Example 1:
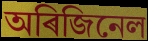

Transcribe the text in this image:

অৰিজিনেল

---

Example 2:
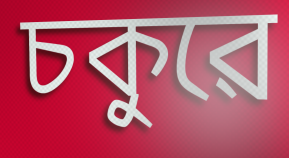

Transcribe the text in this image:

চকুৱে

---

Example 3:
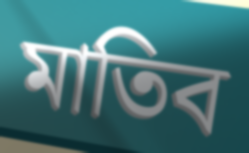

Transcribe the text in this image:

মাতিব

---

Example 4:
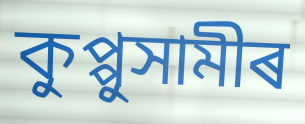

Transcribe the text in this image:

কুপ্পুসামীৰ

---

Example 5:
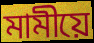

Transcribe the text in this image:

মামীয়ে